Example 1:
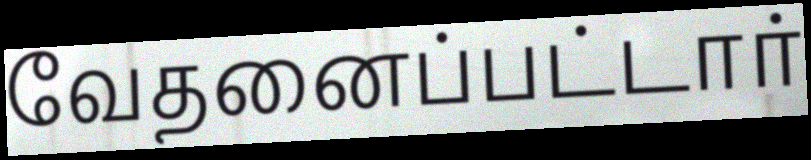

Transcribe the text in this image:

வேதனைப்பட்டார்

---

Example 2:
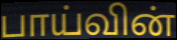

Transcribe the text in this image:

பாய்வின்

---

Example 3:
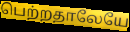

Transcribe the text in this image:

பெற்றதாலேயே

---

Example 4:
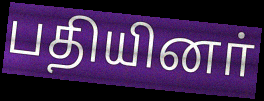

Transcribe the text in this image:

பதியினர்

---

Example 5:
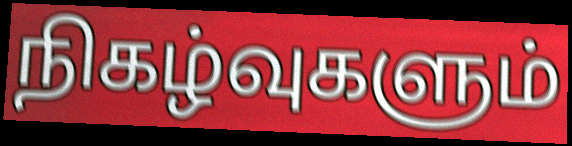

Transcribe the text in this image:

நிகழ்வுகளும்